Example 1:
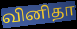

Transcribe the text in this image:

வினிதா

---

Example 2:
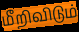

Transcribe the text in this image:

மீறிவிடும்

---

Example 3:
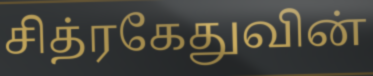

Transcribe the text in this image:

சித்ரகேதுவின்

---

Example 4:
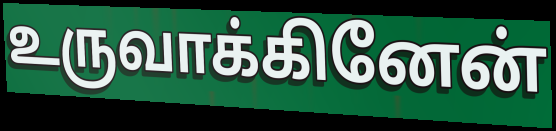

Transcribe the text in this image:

உருவாக்கினேன்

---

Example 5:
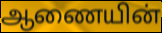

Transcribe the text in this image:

ஆணையின்